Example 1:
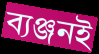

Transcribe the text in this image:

ব্যঞ্জনই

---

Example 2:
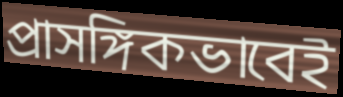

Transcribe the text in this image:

প্রাসঙ্গিকভাবেই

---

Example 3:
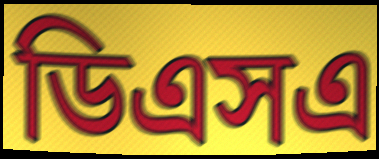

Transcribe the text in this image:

ডিএসএ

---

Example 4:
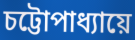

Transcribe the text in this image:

চট্টোপাধ্যায়ে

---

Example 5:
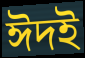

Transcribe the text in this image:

ঈদই